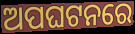
ଅପଘଟନରେ